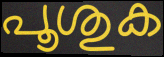
പൂശുക